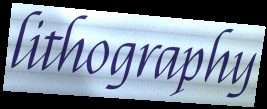
lithography